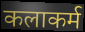
कलाकर्म